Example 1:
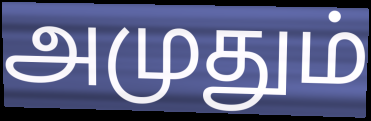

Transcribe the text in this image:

அமுதும்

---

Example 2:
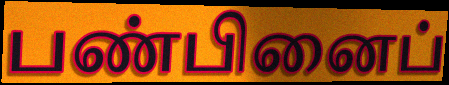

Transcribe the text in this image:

பண்பினைப்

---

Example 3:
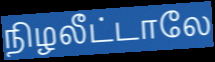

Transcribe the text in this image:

நிழலீட்டாலே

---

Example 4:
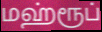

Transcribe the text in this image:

மஹ்ரூப்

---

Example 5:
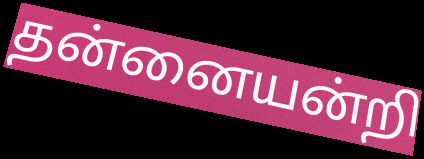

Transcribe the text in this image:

தன்னையன்றி